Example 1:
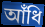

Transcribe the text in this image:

আঁধি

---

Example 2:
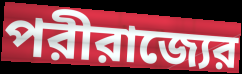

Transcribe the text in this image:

পরীরাজ্যের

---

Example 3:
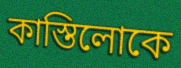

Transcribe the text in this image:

কাস্তিলোকে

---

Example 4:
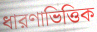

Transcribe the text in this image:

ধারণাভিত্তিক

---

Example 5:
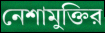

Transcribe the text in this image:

নেশামুক্তির